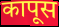
कापूस